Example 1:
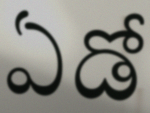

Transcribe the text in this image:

ఏడో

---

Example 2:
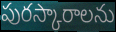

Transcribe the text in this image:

పురస్కారాలను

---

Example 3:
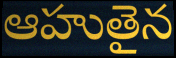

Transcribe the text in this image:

ఆహుతైన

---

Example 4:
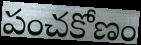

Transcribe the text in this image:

పంచకోణం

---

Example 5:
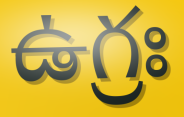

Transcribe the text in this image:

ఉగ్రః